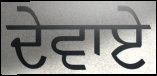
ਦੇਵਾਏ